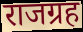
राजग्रह